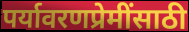
पर्यावरणप्रेमींसाठी